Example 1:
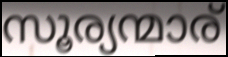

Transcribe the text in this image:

സൂര്യന്മാര്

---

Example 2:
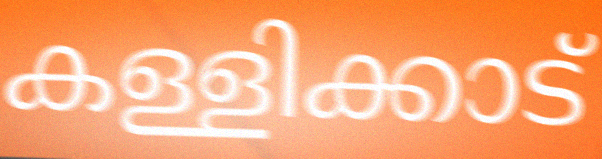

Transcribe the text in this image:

കള്ളിക്കാട്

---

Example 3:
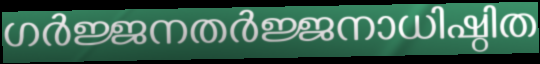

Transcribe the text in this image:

ഗർജ്ജനതർജ്ജനാധിഷ്ഠിത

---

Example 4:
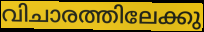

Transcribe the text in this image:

വിചാരത്തിലേക്കു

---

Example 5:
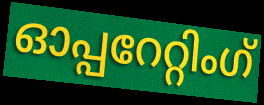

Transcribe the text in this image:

ഓപ്പറേറ്റിംഗ്